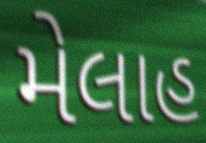
મેલાહ